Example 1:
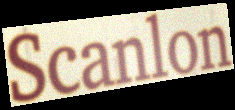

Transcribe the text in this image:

Scanlon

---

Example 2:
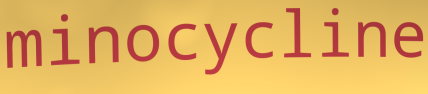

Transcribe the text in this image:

minocycline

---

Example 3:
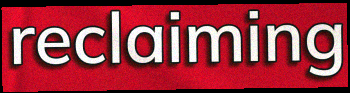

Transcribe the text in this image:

reclaiming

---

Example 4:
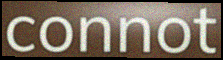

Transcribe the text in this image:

connot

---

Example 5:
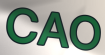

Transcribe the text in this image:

CAO